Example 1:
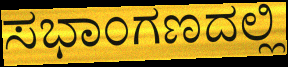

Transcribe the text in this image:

ಸಭಾಂಗಣದಲ್ಲಿ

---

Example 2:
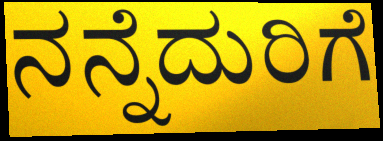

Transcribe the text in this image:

ನನ್ನೆದುರಿಗೆ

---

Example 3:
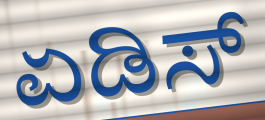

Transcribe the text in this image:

ಏಡಿಸ್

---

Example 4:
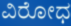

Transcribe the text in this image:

ವಿರೋಧ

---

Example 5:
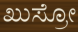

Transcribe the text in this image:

ಖುಸ್ರೋ